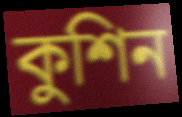
কুশিন